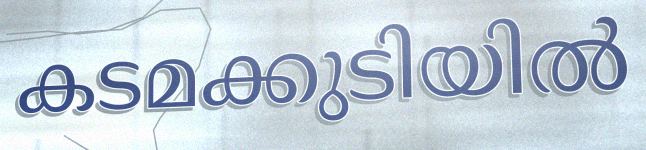
കടമക്കുടിയിൽ